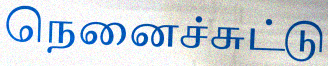
நெனைச்சுட்டு